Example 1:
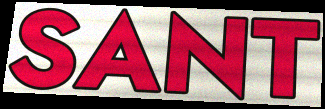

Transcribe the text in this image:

SANT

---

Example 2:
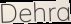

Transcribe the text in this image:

Dehra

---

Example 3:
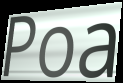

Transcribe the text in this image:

Poa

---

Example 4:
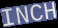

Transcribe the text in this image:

INCH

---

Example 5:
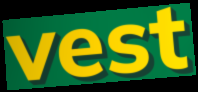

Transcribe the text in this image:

vest